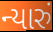
ન્યારું